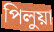
পিলুয়া